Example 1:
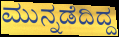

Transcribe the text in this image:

ಮುನ್ನಡೆದಿದ್ದ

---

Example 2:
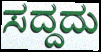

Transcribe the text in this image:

ಸದ್ದದು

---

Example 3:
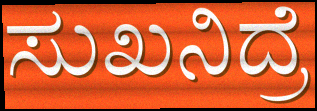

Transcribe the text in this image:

ಸುಖನಿದ್ರೆ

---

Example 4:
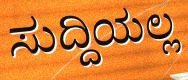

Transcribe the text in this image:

ಸುದ್ದಿಯಲ್ಲ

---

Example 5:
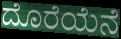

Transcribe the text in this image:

ದೊರೆಯೆನೆ